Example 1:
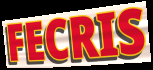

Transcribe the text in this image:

FECRIS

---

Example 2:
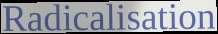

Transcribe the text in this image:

Radicalisation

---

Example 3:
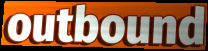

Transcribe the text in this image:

outbound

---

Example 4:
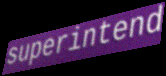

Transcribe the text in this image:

superintend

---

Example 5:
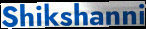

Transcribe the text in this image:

Shikshanni